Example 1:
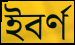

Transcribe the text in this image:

ইবৰ্ণ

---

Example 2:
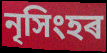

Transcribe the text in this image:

নৃসিংহৰ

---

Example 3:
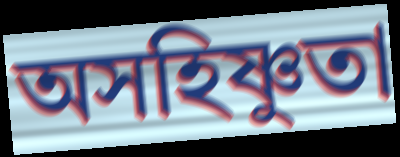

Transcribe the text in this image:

অসহিষ্ণুতা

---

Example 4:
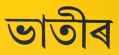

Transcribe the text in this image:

ভাতীৰ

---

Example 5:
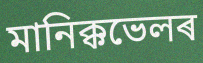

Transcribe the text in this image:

মানিক্কভেলৰ